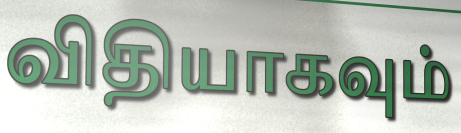
விதியாகவும்